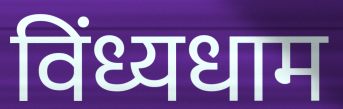
विंध्यधाम